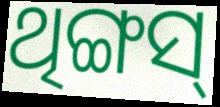
ଥିଙ୍ଗସ୍